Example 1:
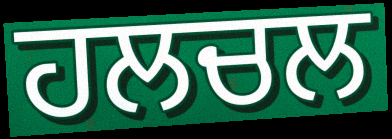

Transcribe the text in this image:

ਹਲਚਲ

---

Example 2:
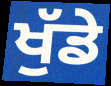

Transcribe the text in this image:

ਖੁੱਡੇ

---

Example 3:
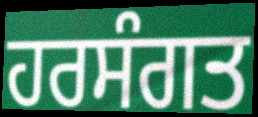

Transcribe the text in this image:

ਹਰਸੰਗਤ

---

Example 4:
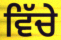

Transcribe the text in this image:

ਵਿੱਚੇ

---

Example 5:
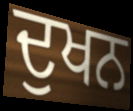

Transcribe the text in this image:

ਦੁਖਨ